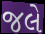
જલે